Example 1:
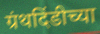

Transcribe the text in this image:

ग्रंथदिंडीच्या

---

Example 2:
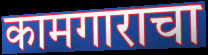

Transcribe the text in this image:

कामगाराचा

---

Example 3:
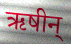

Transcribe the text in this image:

ऋषीन्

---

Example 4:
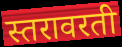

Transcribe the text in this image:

स्तरावरती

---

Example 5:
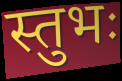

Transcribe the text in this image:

स्तुभः